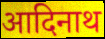
आदिनाथ